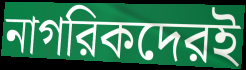
নাগরিকদেরই